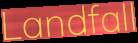
Landfall